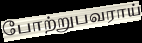
போற்றுபவராய்